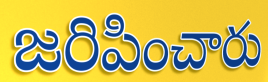
జరిపించారు